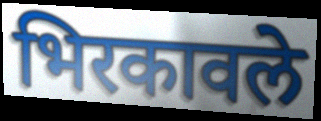
भिरकावले